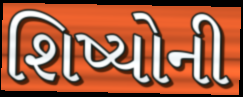
શિષ્યોની